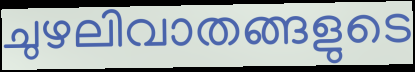
ചുഴലിവാതങ്ങളുടെ